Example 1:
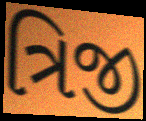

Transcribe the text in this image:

ત્રિજી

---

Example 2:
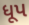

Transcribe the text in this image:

ધૂપ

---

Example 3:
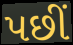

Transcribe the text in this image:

પછીં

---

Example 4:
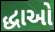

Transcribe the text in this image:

દ્ધાઓ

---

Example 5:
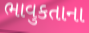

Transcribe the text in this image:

ભાવુકતાના